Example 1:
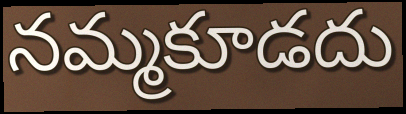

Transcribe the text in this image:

నమ్మకూడదు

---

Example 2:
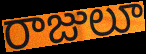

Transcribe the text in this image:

రాజులూ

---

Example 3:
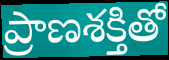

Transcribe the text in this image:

ప్రాణశక్తితో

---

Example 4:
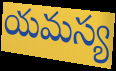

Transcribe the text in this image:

యమస్య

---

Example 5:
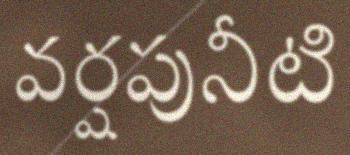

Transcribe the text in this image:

వర్షపునీటి